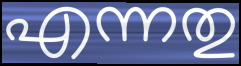
എന്നതു